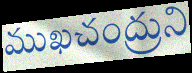
ముఖచంద్రుని